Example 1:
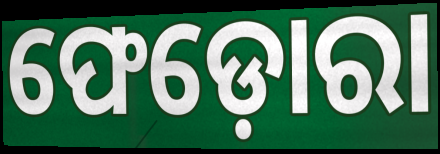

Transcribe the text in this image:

ଫେଡ଼ୋରା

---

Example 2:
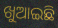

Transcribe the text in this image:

ଖୁଆଇଛି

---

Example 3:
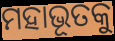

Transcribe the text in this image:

ମହାଭୂତକୁ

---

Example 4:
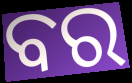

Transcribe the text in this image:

ବର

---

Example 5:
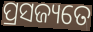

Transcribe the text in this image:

ପ୍ରସଜ୍ୟତେ